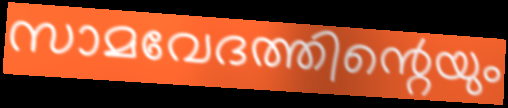
സാമവേദത്തിന്റെയും